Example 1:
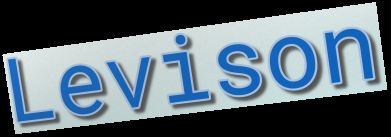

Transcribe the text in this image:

Levison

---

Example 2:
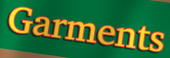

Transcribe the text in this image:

Garments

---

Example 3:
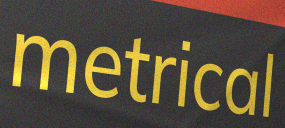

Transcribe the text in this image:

metrical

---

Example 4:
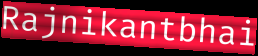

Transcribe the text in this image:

Rajnikantbhai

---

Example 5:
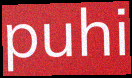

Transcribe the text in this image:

puhi